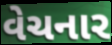
વેચનાર